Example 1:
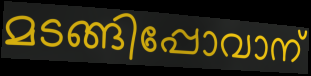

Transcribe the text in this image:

മടങ്ങിപ്പോവാന്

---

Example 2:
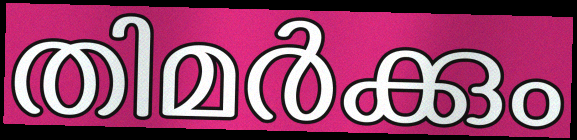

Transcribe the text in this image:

തിമർക്കും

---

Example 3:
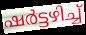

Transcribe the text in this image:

ഷർട്ടഴിച്ച്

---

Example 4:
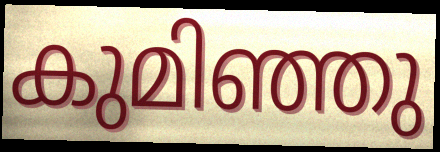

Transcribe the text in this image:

കുമിഞ്ഞു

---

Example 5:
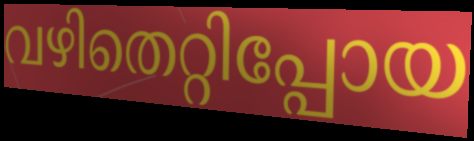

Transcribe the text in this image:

വഴിതെറ്റിപ്പോയ